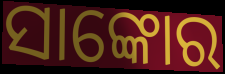
ସାଙ୍କୋର